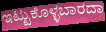
ಇಟ್ಟುಕೊಳ್ಳಬಾರದಾ